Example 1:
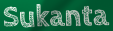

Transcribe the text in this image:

Sukanta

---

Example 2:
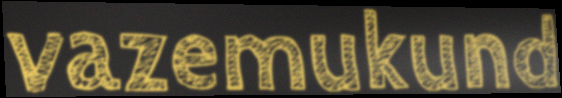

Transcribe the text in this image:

vazemukund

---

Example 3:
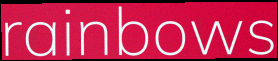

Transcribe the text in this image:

rainbows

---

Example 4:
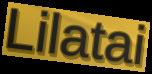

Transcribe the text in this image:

Lilatai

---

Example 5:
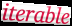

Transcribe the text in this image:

iterable